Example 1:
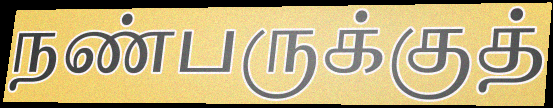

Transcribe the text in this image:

நண்பருக்குத்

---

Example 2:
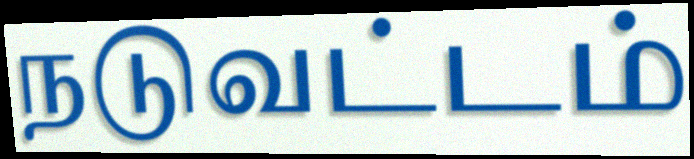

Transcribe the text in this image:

நடுவட்டம்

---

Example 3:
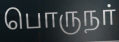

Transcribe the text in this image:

பொருநர்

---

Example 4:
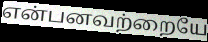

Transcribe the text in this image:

என்பனவற்றையே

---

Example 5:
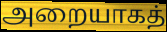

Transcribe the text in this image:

அறையாகத்